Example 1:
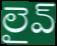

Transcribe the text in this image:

లైవ్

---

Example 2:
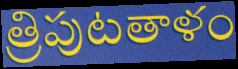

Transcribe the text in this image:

త్రిపుటతాళం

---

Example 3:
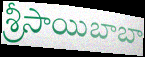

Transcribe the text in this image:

శ్రీసాయిబాబా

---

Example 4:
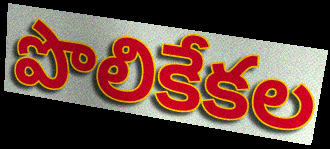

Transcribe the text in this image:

పొలికేకల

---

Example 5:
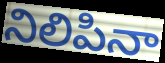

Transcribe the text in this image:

నిలిపినా